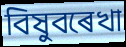
বিষুবৰেখা